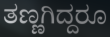
ತಣ್ಣಗಿದ್ದರೂ